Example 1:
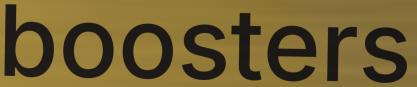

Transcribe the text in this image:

boosters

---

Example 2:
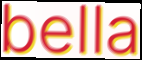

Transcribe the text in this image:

bella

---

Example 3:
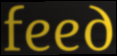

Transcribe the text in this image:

feed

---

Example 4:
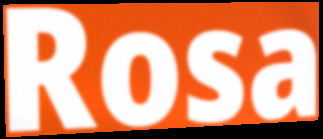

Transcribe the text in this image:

Rosa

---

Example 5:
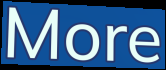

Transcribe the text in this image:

More